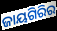
ଜାୟଗିରିର